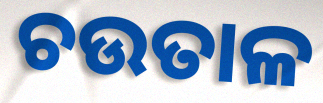
ଚଉତାଳ